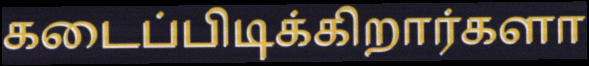
கடைப்பிடிக்கிறார்களா